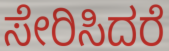
ಸೇರಿಸಿದರೆ